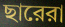
ছারেরা